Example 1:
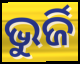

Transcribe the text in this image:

ଭୁର୍ଜି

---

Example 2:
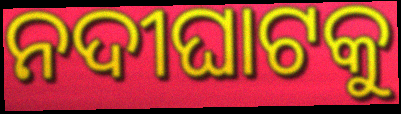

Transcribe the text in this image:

ନଦୀଘାଟକୁ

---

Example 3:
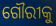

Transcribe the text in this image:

ଗୌରୀକୁ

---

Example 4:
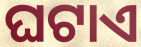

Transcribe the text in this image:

ଘଟାଏ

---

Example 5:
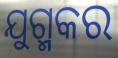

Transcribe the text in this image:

ଯୁଗ୍ମକର